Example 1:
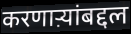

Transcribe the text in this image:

करणाऱ्‍यांबद्दल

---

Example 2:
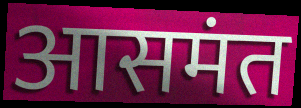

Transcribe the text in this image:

आसमंत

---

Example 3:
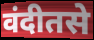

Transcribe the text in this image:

वंदीतसे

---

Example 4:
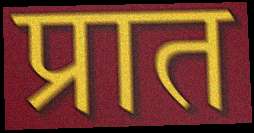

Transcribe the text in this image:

प्रात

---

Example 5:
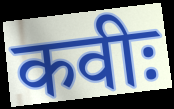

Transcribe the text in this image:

कवीः